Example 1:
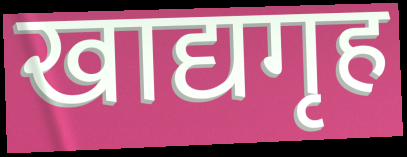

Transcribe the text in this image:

खाद्यगृह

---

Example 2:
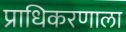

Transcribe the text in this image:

प्राधिकरणाला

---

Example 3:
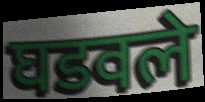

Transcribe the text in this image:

घडवले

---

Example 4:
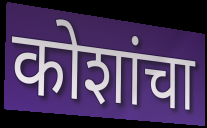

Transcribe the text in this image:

कोशांचा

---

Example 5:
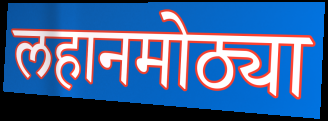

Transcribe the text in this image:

लहानमोठ्या